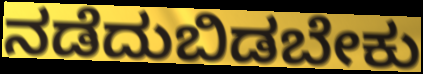
ನಡೆದುಬಿಡಬೇಕು